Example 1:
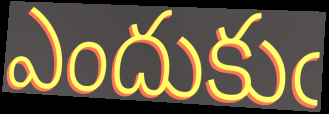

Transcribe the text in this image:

ఎందుకుఁ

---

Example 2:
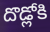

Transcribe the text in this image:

దొడ్లోకి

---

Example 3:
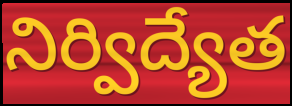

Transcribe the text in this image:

నిర్విద్యేత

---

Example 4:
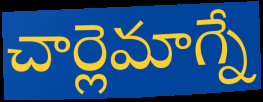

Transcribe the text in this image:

చార్లెమాగ్నే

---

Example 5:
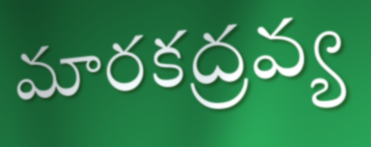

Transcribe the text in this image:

మారకద్రవ్య